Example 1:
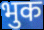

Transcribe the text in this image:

भुक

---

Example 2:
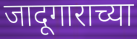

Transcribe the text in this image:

जादूगाराच्या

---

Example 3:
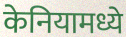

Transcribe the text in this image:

केनियामध्ये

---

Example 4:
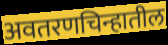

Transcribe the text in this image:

अवतरणचिन्हातील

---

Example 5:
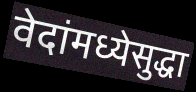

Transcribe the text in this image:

वेदांमध्येसुद्धा